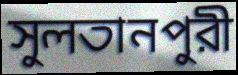
সুলতানপুরী